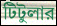
টিটুলার